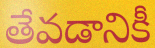
తేవడానికీ